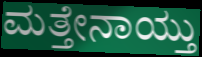
ಮತ್ತೇನಾಯ್ತು